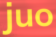
juo